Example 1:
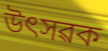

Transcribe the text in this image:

উৎসৱক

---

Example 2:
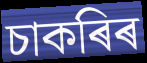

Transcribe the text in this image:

চাকৰিৰ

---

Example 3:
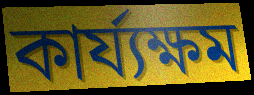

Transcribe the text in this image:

কাৰ্য্যক্ষম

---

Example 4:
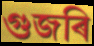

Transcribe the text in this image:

গুজৰি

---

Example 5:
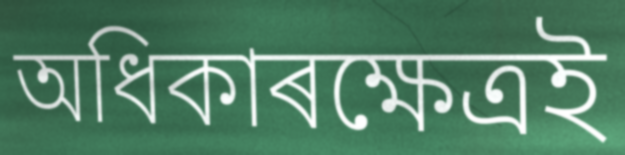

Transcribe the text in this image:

অধিকাৰক্ষেত্ৰই